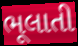
ભૂલાતી